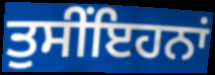
ਤੁਸੀਂਇਹਨਾਂ